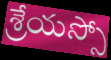
శ్రేయస్సో